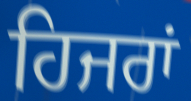
ਹਿਜਰਾਂ